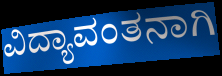
ವಿದ್ಯಾವಂತನಾಗಿ